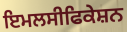
ਇਮਲਸੀਫਿਕੇਸ਼ਨ